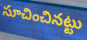
సూచించినట్టు